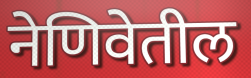
नेणिवेतील